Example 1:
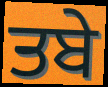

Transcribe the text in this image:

ਤਬੇ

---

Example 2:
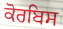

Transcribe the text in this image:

ਕੋਰਬਿਸ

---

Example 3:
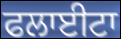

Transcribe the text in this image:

ਫਲਾਈਟਾ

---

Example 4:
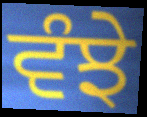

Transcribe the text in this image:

ਵੰਝੇ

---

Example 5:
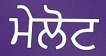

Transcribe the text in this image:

ਮੇਲੋਟ